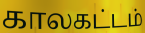
காலகட்டம்